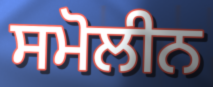
ਸਮੋਲੀਨ